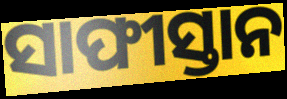
ସାଫୀସ୍ତାନ